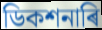
ডিকশনাৰি